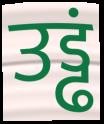
उड्ढं